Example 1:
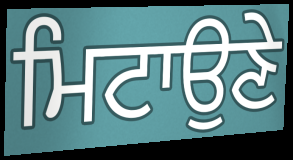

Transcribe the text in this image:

ਮਿਟਾਉਣੇ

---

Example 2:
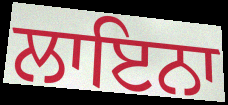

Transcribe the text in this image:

ਲਾਇਨਾ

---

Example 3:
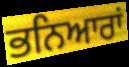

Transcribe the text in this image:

ਭਨਿਆਰਾਂ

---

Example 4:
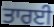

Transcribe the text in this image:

ਤਾਰਈ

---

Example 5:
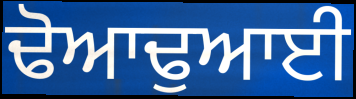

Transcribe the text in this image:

ਢੋਆਢੁਆਈ